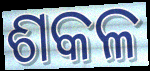
ଶକଳ